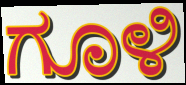
ಗೂಳಿ